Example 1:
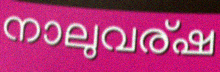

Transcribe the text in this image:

നാലുവര്ഷ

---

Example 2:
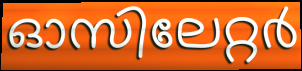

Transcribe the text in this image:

ഓസിലേറ്റർ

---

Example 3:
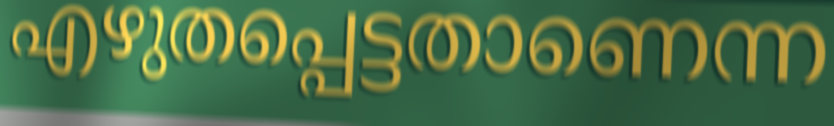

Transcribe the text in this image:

എഴുതപ്പെട്ടതാണെന്ന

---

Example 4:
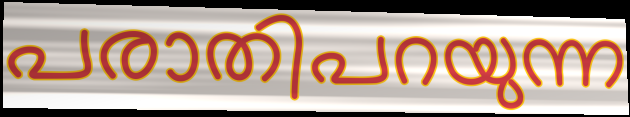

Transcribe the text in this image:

പരാതിപറയുന്ന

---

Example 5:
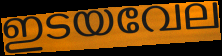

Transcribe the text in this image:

ഇടയവേല